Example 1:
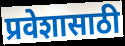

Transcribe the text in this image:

प्रवेशासाठी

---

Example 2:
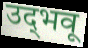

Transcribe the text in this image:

उद्‌भवू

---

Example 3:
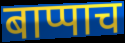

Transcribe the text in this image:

बाप्पाच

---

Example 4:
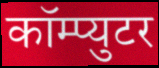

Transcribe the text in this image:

कॉम्प्युटर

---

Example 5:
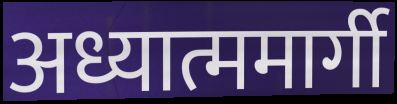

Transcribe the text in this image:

अध्यात्ममार्गी